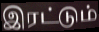
இரட்டும்